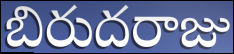
బిరుదరాజు